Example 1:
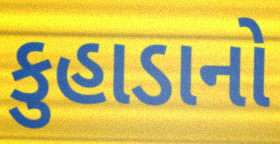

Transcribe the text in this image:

કુહાડાનો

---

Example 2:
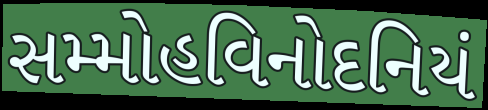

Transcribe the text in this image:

સમ્મોહવિનોદનિયં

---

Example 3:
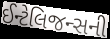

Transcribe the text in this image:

ઈન્ટેલિજન્સની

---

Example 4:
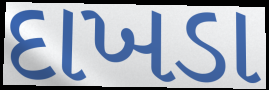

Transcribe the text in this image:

દાખડા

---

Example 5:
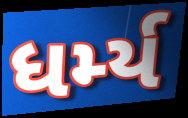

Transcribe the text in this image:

ધર્મ્ય